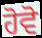
ਹੋਵੋ